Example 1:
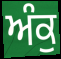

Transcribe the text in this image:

ਅੰਕੁ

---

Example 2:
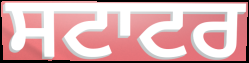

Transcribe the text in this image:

ਸਟਾਟਰ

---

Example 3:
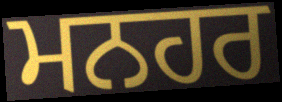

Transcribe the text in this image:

ਮਨਹਰ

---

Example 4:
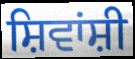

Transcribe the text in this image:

ਸ਼ਿਵਾਂਸ਼ੀ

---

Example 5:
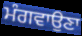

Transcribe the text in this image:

ਮੰਗਵਾਉਣਾ